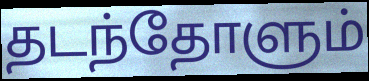
தடந்தோளும்